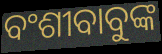
ବଂଶୀବାବୁଙ୍କ